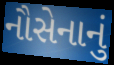
નૌસેનાનું